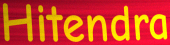
Hitendra